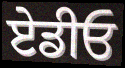
ਏਡੀਓ